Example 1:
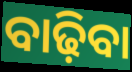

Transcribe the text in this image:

ବାଢ଼ିବା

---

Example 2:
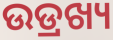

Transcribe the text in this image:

ଉଡ୍ରଖ୍ୟ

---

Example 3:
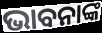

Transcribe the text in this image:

ଭାବନାଙ୍କ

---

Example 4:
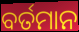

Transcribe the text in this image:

ବର୍ତମାନ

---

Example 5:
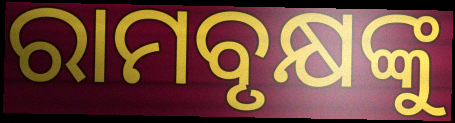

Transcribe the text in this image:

ରାମବୃକ୍ଷଙ୍କୁ